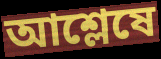
আশ্লেষে